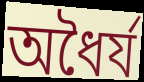
অধৈর্য